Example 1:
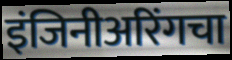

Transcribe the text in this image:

इंजिनीअरिंगचा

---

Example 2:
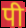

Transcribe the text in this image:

पी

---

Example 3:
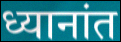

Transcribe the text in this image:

ध्यानांत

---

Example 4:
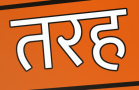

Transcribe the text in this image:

तरह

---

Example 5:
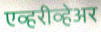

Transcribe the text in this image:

एव्हरीव्हेअर